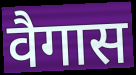
वैगास